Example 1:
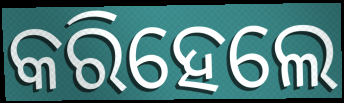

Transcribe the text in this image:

କରିହେଲେ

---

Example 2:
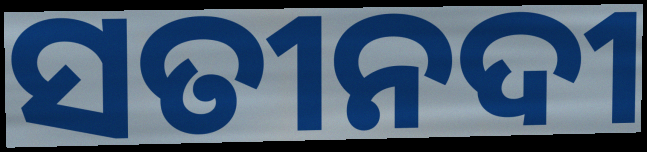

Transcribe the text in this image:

ସତୀନଦୀ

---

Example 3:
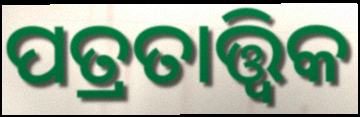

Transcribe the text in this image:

ପତ୍ରତାତ୍ତ୍ୱିକ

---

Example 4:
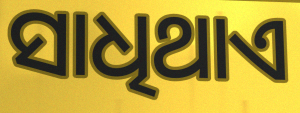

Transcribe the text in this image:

ସାଧିଥାଏ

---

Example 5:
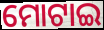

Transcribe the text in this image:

ମୋଟାଇ